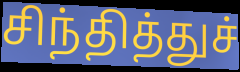
சிந்தித்துச்